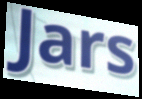
Jars